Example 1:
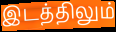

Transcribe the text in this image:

இடத்திலும்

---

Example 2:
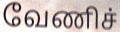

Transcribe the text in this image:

வேணிச்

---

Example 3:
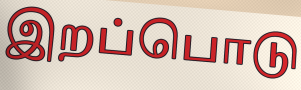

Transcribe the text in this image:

இறப்பொடு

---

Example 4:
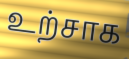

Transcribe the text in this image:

உற்சாக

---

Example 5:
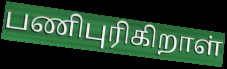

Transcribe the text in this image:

பணிபுரிகிறாள்